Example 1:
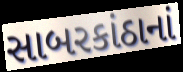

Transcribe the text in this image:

સાબરકાંઠાનાં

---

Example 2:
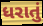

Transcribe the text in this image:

ધરાતું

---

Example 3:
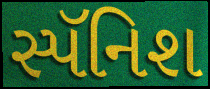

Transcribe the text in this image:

સ્પૅનિશ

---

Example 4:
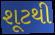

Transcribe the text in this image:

શૂટથી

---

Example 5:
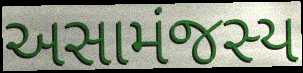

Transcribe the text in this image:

અસામંજસ્ય